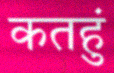
कतहुं